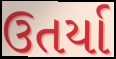
ઉતર્યા